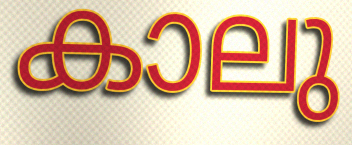
കാലു